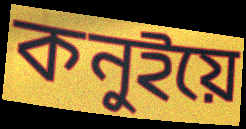
কনুইয়ে